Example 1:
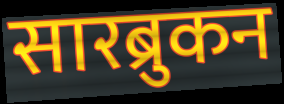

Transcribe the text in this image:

सारब्रुकन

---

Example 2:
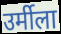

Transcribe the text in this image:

उर्मीला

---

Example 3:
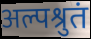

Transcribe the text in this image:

अल्पश्रुतं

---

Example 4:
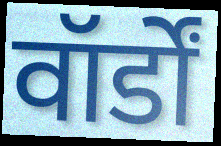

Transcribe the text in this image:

वॉर्डों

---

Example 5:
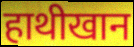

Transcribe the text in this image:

हाथीखान